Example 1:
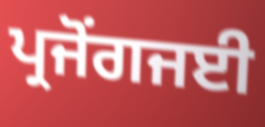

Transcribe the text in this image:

ਪ੍ਰਜੋਂਗਜਈ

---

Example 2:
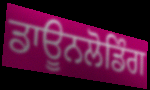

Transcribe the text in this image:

ਡਾਊਨਲੋਡਿੰਗ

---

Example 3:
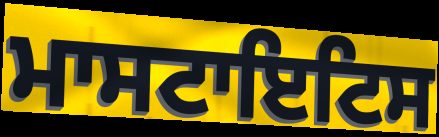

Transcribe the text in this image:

ਮਾਸਟਾਇਟਿਸ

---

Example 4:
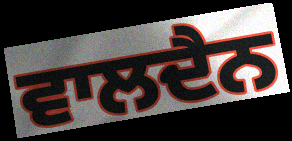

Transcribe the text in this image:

ਵਾਲਦੈਨ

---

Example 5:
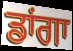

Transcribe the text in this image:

ਡਾਂਗਾ